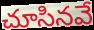
చూసినవే